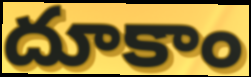
దూకాం